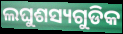
ଲଘୁଶସ୍ୟଗୁଡିକ